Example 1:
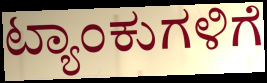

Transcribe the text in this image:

ಟ್ಯಾಂಕುಗಳಿಗೆ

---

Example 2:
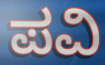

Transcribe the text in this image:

ಪವಿ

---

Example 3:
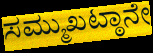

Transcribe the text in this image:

ಸಮ್ಮುಖಟ್ಠಾನೇ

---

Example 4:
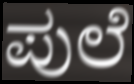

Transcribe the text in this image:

ಪುಲೆ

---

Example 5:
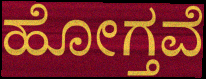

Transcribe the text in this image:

ಹೋಗ್ತವೆ